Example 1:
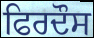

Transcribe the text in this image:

ਫਿਰਦੌਸ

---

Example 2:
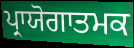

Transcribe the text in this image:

ਪ੍ਰਾਯੋਗਾਤਮਕ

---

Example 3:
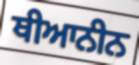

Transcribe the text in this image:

ਥੀਆਨੀਨ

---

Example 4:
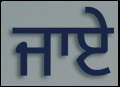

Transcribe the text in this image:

ਜਾਏੇ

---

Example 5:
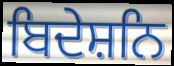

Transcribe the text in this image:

ਬਿਦੇਸ਼ਨਿ